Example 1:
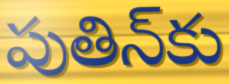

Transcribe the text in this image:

పుతిన్‌కు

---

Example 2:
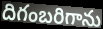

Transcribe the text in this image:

దిగంబరిగాను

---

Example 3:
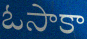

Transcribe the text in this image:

ఓసాకా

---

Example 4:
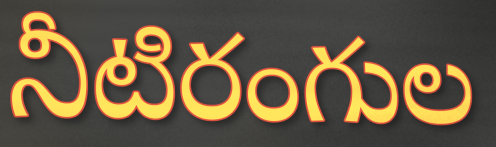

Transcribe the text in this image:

నీటిరంగుల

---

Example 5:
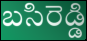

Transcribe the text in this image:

బసిరెడ్డి